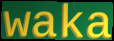
waka